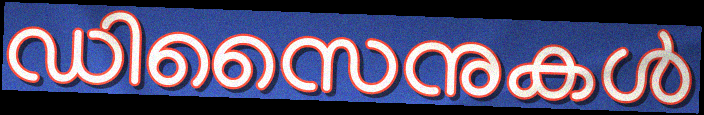
ഡിസൈനുകൾ